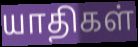
யாதிகள்